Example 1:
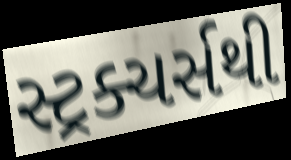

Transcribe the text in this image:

સ્ટ્રક્ચર્સથી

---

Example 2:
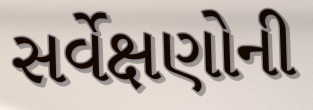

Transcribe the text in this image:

સર્વેક્ષણોની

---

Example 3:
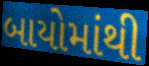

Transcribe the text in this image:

બાયોમાંથી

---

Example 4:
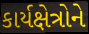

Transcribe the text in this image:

કાર્યક્ષેત્રોને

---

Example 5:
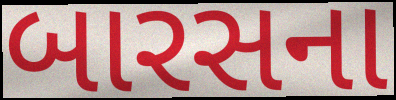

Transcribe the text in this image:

બારસના